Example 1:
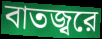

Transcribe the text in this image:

বাতজ্বরে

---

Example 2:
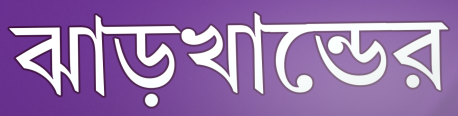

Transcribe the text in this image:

ঝাড়খান্ডের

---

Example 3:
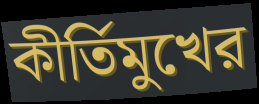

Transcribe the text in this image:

কীর্তিমুখের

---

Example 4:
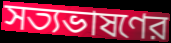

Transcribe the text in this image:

সত্যভাষণের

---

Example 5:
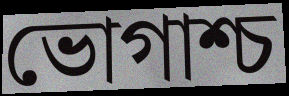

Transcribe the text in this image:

ভোগাশ্চ